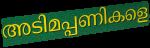
അടിമപ്പണികളെ